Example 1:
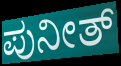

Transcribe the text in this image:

ಪುನೀತ್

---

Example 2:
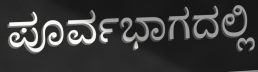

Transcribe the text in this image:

ಪೂರ್ವಭಾಗದಲ್ಲಿ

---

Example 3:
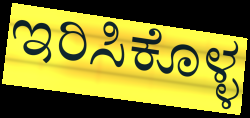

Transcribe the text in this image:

ಇರಿಸಿಕೊಳ್ಳ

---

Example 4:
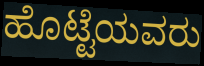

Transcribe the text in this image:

ಹೊಟ್ಟೆಯವರು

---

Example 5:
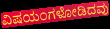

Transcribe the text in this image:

ವಿಷಯಂಗಳೋಡಿದವು